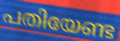
പതിയേണ്ട